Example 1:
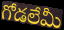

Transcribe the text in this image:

గోడలేమీ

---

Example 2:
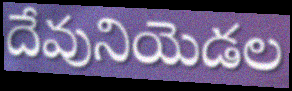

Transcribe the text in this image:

దేవునియెడల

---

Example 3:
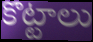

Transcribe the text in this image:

కొట్టాలు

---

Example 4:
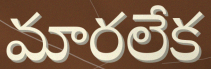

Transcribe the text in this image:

మారలేక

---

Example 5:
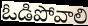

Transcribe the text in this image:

ఓడిపోవాలి